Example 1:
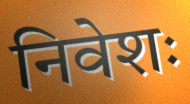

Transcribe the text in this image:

निवेशः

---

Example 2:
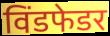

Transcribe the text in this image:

विंडफेडर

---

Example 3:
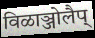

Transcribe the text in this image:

विळाञ्जोलैप्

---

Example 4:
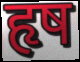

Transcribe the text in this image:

हृष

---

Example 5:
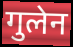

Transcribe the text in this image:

गुलेन